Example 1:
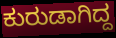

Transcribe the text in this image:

ಕುರುಡಾಗಿದ್ದ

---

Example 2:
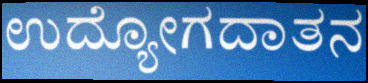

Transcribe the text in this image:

ಉದ್ಯೋಗದಾತನ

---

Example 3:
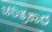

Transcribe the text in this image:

ಚರಿತ್ರಕಾರ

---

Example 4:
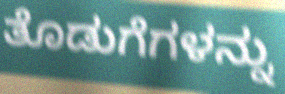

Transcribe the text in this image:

ತೊಡುಗೆಗಳನ್ನು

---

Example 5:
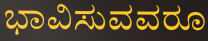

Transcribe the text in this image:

ಭಾವಿಸುವವರೂ